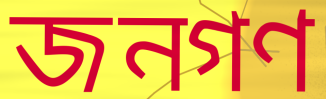
জনগণ